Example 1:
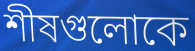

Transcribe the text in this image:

শীষগুলোকে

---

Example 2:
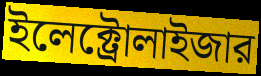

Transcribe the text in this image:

ইলেক্ট্রোলাইজার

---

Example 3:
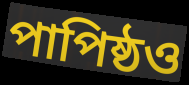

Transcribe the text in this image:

পাপিষ্ঠও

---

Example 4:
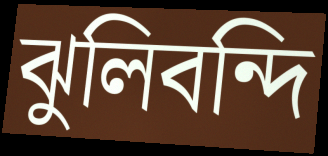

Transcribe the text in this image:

ঝুলিবন্দি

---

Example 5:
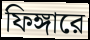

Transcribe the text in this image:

ফিঙ্গারে